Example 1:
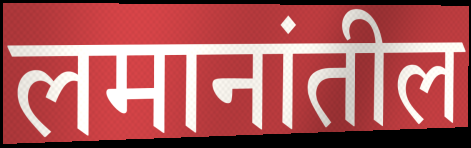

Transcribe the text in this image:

लमानांतील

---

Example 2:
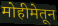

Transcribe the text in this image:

मोहीमेतून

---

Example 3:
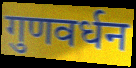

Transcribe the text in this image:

गुणवर्धन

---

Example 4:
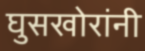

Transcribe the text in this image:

घुसखोरांनी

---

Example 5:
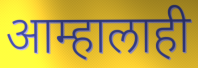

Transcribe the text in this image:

आम्हालाही